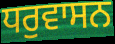
ਧਰੁਵਾਸਨ